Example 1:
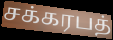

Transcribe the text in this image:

சக்கரபத்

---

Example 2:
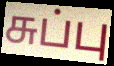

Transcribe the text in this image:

சுப்பு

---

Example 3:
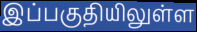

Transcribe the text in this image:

இப்பகுதியிலுள்ள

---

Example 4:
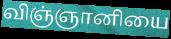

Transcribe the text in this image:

விஞ்ஞானியை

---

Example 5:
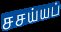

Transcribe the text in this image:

சசய்யப்